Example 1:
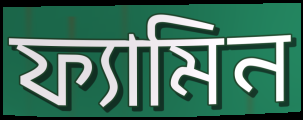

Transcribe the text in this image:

ফ্যামিন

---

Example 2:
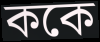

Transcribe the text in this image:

ককে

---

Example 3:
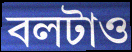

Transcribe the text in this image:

বলটাও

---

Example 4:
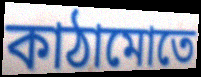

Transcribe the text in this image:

কাঠামোতে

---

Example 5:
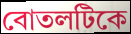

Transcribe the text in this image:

বোতলটিকে